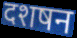
दशषन